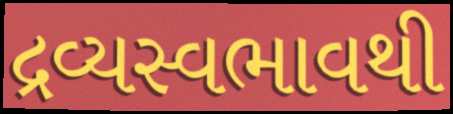
દ્રવ્યસ્વભાવથી